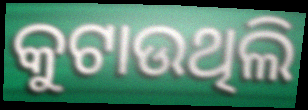
କୁଟାଉଥିଲି